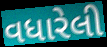
વધારેલી